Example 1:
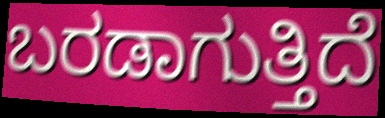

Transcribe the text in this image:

ಬರಡಾಗುತ್ತಿದೆ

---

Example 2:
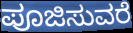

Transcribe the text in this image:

ಪೂಜಿಸುವರೆ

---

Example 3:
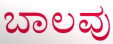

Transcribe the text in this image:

ಬಾಲವು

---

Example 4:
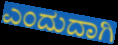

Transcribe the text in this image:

ಎಂದುದಾಗಿ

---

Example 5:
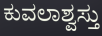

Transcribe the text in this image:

ಕುವಲಾಶ್ವಸ್ತು